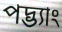
পদ্ভ্যাং